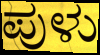
ಪುಳು